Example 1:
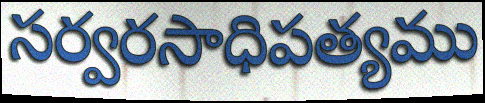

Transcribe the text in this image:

సర్వరసాధిపత్యము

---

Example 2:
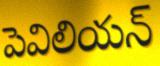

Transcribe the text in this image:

పెవిలియన్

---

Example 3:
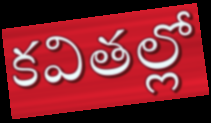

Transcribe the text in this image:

కవితల్లో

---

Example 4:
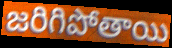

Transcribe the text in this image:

జరిగిపోతాయి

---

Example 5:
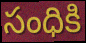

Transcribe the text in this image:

సంధికి